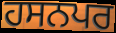
ਹਸਨਪਰ